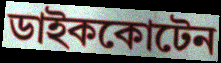
ডাইককোটেন